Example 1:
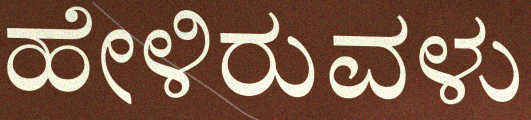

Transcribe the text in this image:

ಹೇಳಿರುವಳು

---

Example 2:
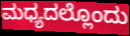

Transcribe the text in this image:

ಮಧ್ಯದಲ್ಲೊಂದು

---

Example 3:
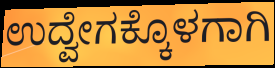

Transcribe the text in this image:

ಉದ್ವೇಗಕ್ಕೊಳಗಾಗಿ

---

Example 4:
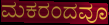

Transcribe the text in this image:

ಮಕರಂದವೂ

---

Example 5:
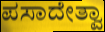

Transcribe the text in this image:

ಪಸಾದೇತ್ವಾ